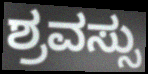
ಶ್ರವಸ್ಸು